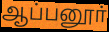
ஆப்பனூர்